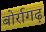
बोर्रागढ़